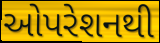
ઓપરેશનથી